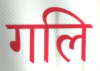
गलि